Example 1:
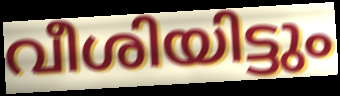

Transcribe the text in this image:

വീശിയിട്ടും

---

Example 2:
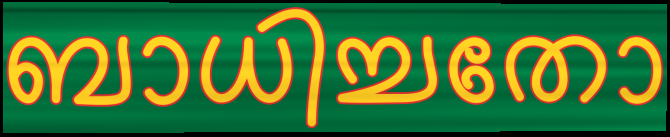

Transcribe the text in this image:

ബാധിച്ചതോ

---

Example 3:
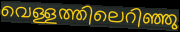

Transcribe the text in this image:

വെള്ളത്തിലെറിഞ്ഞു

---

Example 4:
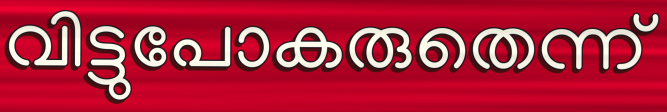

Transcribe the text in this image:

വിട്ടുപോകരുതെന്ന്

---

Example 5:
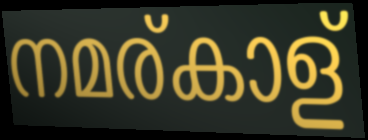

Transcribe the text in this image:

നമര്കാള്